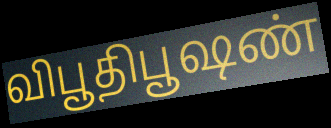
விபூதிபூஷண்